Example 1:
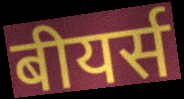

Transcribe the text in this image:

बीयर्स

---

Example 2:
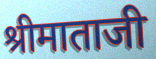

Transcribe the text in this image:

श्रीमाताजी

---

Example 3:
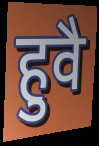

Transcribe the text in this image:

हुवै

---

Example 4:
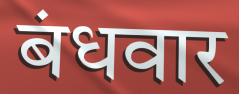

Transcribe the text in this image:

बंधवार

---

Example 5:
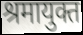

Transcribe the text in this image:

श्रमायुक्त